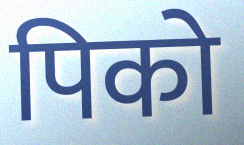
पिको